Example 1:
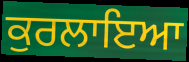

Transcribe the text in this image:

ਕੁਰਲਾਇਆ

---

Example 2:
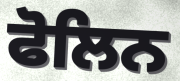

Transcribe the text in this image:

ਫੋਲਿਨ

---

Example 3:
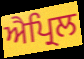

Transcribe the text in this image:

ਐਪ੍ਰਿਲ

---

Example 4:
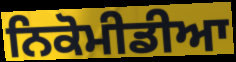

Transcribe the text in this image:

ਨਿਕੋਮੀਡੀਆ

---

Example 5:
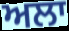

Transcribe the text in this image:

ਅਲਾ